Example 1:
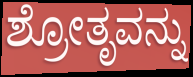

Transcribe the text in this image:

ಶ್ರೋತೃವನ್ನು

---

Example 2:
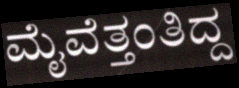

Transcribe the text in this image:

ಮೈವೆತ್ತಂತಿದ್ದ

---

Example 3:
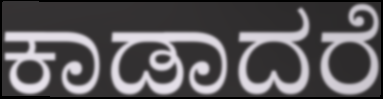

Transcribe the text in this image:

ಕಾಡಾದರೆ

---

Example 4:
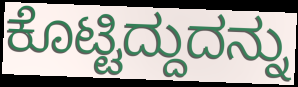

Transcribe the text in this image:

ಕೊಟ್ಟಿದ್ದುದನ್ನು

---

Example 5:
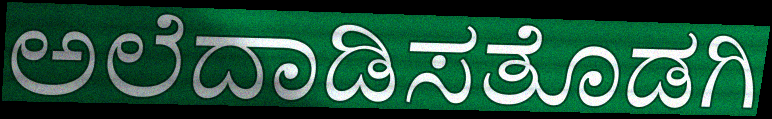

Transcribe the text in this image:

ಅಲೆದಾಡಿಸತೊಡಗಿ